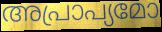
അപ്രാപ്യമോ